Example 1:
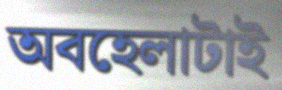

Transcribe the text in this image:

অবহেলাটাই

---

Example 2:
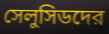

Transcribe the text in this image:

সেলুসিডদের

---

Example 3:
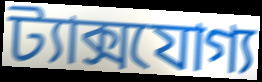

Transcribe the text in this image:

ট্যাক্সযোগ্য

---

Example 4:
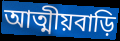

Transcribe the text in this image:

আত্মীয়বাড়ি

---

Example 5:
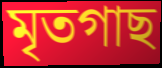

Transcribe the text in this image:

মৃতগাছ